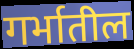
गर्भातील